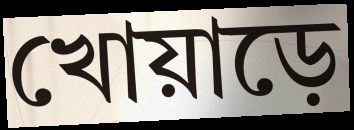
খোয়াড়ে